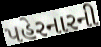
પહેરનારની